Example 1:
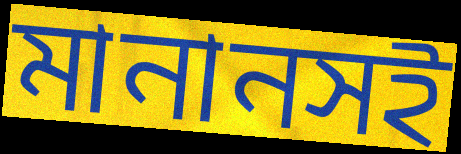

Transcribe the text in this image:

মানানসই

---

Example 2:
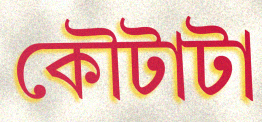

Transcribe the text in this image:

কৌটাটা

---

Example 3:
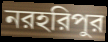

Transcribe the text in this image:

নরহরিপুর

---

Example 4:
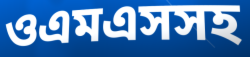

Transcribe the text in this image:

ওএমএসসহ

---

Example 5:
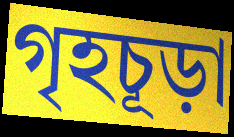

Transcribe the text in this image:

গৃহচূড়া